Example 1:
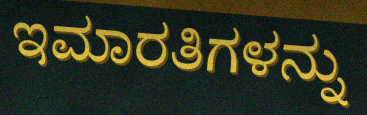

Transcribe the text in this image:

ಇಮಾರತಿಗಳನ್ನು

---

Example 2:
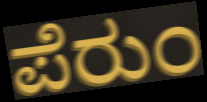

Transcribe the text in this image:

ಪೆರುಂ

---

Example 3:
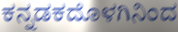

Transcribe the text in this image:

ಕನ್ನಡಕದೊಳಗಿನಿಂದ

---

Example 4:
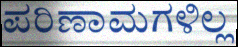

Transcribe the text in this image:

ಪರಿಣಾಮಗಳಿಲ್ಲ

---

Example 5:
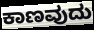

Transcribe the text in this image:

ಕಾಣವುದು